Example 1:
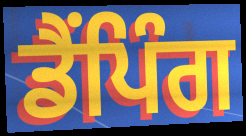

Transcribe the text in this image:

ਡੈਂਪਿੰਗ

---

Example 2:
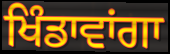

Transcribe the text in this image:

ਖਿੰਡਾਵਾਂਗਾ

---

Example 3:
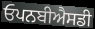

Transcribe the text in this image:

ਓਪਨਬੀਐਸਡੀ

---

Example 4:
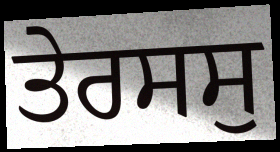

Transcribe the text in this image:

ਤੇਰਸਸੁ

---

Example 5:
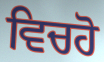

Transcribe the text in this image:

ਵਿਚਹੋ